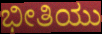
ಭೀತಿಯು